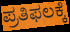
ಪ್ರತಿಫಲಕ್ಕೆ